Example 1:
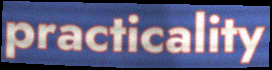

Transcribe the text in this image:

practicality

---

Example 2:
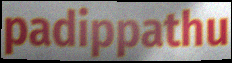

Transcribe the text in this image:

padippathu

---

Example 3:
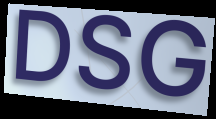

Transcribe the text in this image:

DSG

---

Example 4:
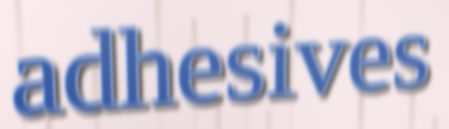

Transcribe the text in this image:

adhesives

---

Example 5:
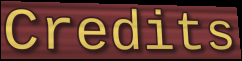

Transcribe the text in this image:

Credits